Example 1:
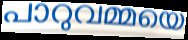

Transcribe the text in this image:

പാറുവമ്മയെ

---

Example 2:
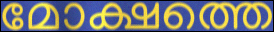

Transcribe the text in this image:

മോക്ഷത്തെ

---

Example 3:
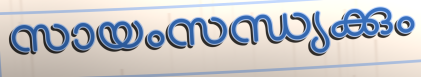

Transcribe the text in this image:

സായംസന്ധ്യക്കും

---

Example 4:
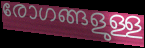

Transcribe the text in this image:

രോഗങ്ങളുള്ള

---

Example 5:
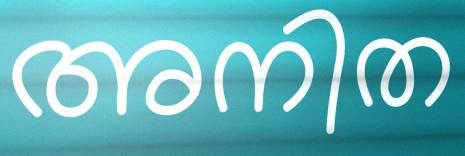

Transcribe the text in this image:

അനിത